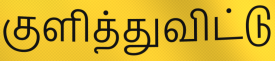
குளித்துவிட்டு